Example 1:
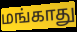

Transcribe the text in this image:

மங்காது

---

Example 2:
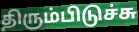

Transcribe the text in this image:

திரும்பிடுச்சு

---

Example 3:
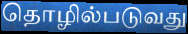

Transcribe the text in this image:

தொழில்படுவது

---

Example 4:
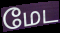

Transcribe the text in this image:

மேட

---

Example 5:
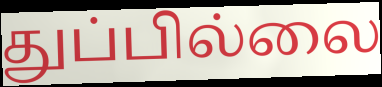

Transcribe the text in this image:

துப்பில்லை